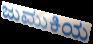
ಜುಮುಕಿಯ